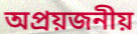
অপ্রয়জনীয়